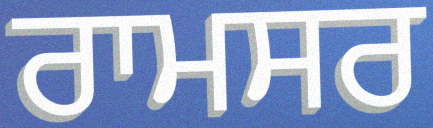
ਰਾਮਸਰ